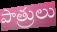
పాత్రులు